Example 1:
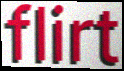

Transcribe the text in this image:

flirt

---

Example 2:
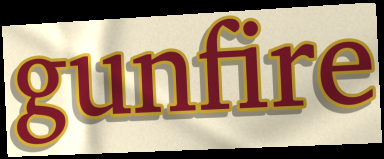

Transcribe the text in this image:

gunfire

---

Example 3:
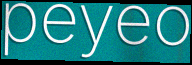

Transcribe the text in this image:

peyeo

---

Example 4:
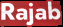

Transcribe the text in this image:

Rajab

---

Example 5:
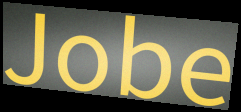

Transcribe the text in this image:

Jobe